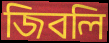
জিবলি